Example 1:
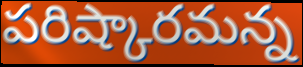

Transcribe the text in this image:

పరిష్కారమన్న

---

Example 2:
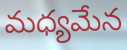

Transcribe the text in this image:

మధ్యమేన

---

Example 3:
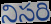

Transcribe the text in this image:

నిసరి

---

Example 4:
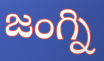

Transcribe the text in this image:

జంగ్ని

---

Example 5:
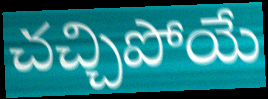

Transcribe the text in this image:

చచ్చిపోయే